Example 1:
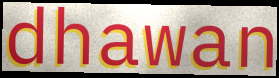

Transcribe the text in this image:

dhawan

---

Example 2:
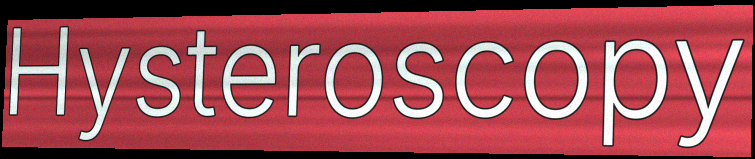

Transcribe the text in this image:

Hysteroscopy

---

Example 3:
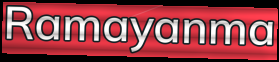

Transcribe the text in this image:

Ramayanma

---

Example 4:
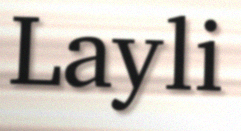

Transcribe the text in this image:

Layli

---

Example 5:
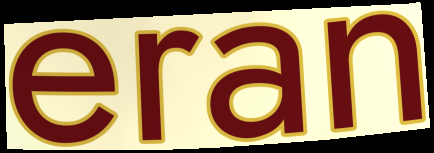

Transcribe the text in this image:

eran